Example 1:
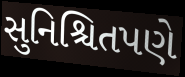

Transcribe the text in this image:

સુનિશ્ચિતપણે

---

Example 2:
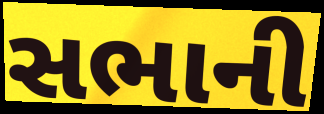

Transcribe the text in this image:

સભાની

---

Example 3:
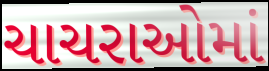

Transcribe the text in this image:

ચાચરાઓમાં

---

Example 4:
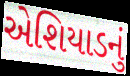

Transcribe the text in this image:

એશિયાડનું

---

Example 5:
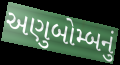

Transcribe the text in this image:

અણુબોમ્બનું